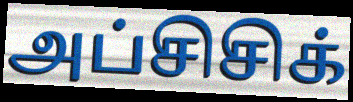
அப்சிசிக்